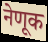
नेणूक